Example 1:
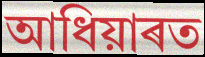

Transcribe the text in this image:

আধিয়াৰত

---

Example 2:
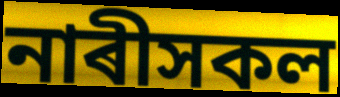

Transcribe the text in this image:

নাৰীসকল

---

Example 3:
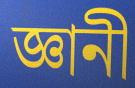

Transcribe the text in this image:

জ্ঞানী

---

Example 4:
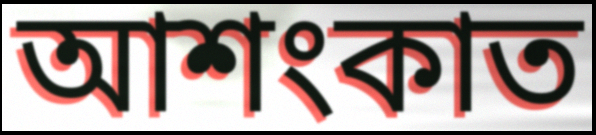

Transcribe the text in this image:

আশংকাত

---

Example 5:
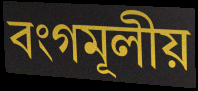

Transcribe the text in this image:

বংগমূলীয়